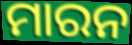
ମାରନ